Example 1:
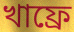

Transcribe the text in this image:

খাফ্রে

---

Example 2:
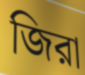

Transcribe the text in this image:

জিরা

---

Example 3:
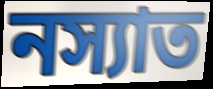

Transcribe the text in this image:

নস্যাত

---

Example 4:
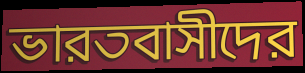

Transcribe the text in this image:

ভারতবাসীদের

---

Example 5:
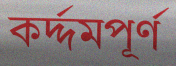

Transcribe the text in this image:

কর্দ্দমপূর্ণ